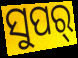
ସୁପର୍